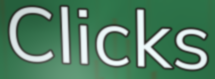
Clicks